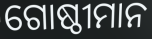
ଗୋଷ୍ଠୀମାନ